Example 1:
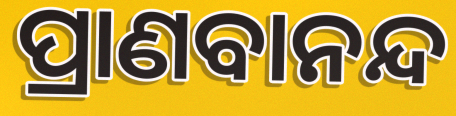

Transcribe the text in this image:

ପ୍ରାଣବାନନ୍ଦ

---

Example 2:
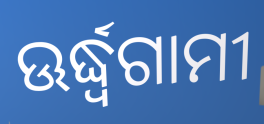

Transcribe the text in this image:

ଊର୍ଦ୍ଧ୍ଵଗାମୀ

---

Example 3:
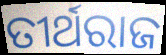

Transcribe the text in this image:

ତୀର୍ଥରାଜ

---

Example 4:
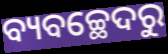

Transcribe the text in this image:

ବ୍ୟବଚ୍ଛେଦରୁ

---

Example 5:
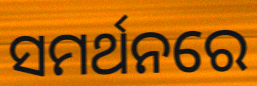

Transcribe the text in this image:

ସମର୍ଥନରେ